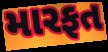
મારફત